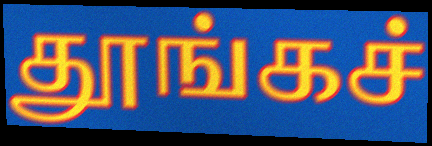
தூங்கச்